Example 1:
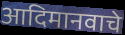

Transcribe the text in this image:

आदिमानवाचे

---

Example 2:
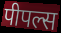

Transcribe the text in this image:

पीपल्स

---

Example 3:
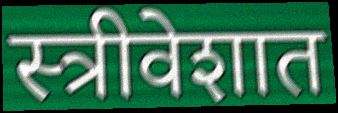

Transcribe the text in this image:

स्त्रीवेशात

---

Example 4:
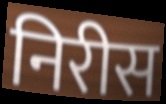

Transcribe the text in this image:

निरीस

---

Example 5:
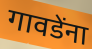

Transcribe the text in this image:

गावडेंना